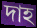
দাহ